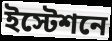
ইস্টেশনে